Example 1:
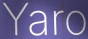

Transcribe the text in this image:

Yaro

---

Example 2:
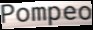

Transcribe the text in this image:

Pompeo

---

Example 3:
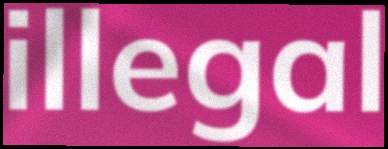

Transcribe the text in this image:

illegal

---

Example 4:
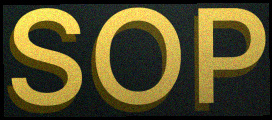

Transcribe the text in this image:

SOP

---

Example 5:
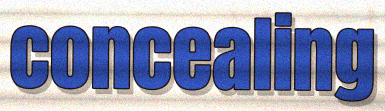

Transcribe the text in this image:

concealing